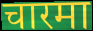
चारमा